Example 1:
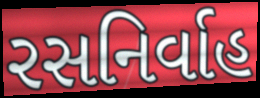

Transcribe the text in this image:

રસનિર્વાહ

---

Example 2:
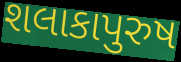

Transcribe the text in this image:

શલાકાપુરુષ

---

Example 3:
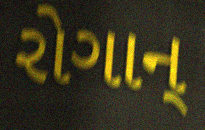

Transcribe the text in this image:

રોગાન્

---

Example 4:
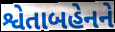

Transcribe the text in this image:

શ્વેતાબહેનને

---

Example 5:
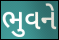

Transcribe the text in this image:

ભુવને